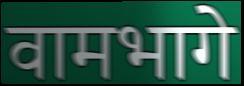
वामभागे